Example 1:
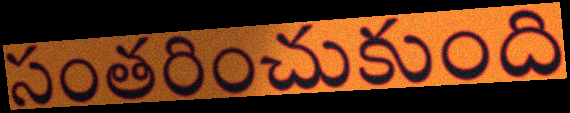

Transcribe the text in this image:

సంతరించుకుంది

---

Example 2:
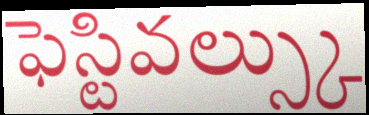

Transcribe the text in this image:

ఫెస్టివల్స్కు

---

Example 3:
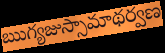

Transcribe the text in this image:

ఋగ్యజుస్సామాథర్వణ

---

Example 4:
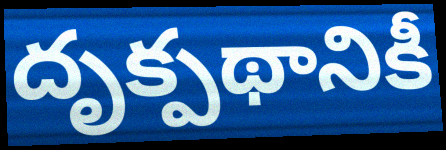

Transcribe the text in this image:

దృక్పథానికీ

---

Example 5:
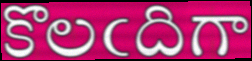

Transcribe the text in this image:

కొలఁదిగా